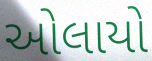
ઓલાયો